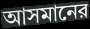
আসমানের